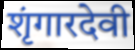
शृंगारदेवी